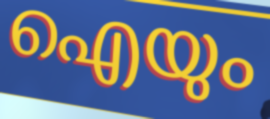
ഐയും